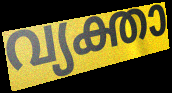
വ്യക്താ